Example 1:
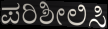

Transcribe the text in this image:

ಪರಿಶೀಲಿಸಿ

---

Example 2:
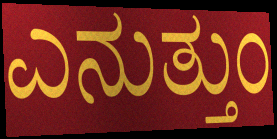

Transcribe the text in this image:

ಎನುತ್ತುಂ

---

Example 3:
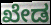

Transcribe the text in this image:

ಖೇಡ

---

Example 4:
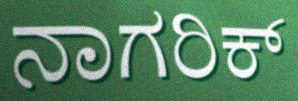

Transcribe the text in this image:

ನಾಗರಿಕ್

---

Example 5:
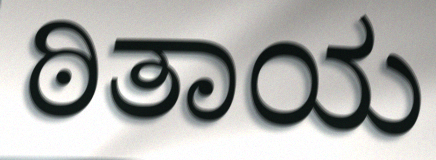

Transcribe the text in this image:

ಠಿತಾಯ